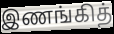
இணங்கித்